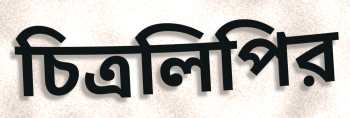
চিত্রলিপির